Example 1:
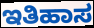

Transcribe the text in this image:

ಇತಿಹಾಸ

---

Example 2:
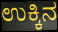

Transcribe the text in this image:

ಉಕ್ಕಿನ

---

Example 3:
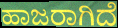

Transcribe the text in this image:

ಹಾಜರಾಗಿದೆ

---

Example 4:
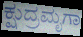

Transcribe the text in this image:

ಕ್ಷುದ್ರಮೃಗಾ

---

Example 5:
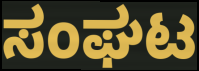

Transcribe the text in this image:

ಸಂಘಟ